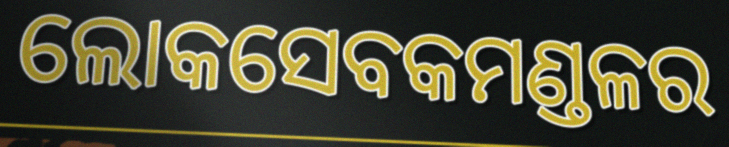
ଲୋକସେବକମଣ୍ଡଳର